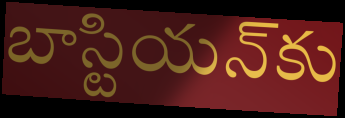
బాస్టియన్‌కు